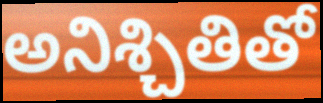
అనిశ్చితితో